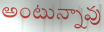
అంటున్నావు